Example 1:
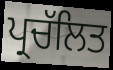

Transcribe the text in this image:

ਪ੍ਰਚੱਲਿਤ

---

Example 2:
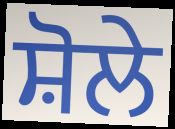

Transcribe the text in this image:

ਸ਼ੋਲੇ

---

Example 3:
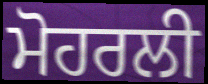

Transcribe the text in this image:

ਮੋਹਰਲੀ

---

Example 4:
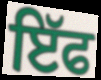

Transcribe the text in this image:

ਇੱਫ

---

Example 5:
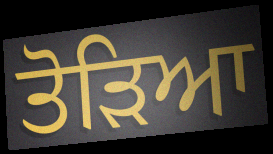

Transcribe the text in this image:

ਤੋਡ਼ਿਆ